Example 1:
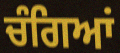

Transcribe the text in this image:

ਚੰਗਿਆਂ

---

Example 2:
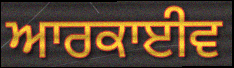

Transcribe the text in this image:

ਆਰਕਾਈਵ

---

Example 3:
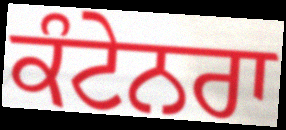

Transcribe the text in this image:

ਕੰਟੇਨਰਾ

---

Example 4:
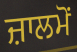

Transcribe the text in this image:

ਜ਼ਾਲਮੋਂ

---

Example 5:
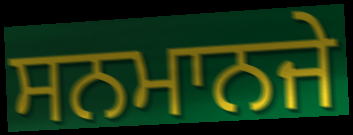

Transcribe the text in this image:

ਸਨਮਾਨਜੇ